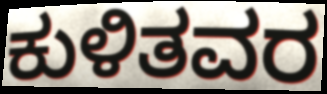
ಕುಳಿತವರ